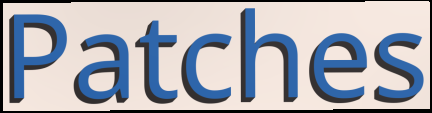
Patches